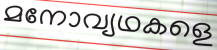
മനോവ്യഥകളെ